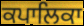
ਕਪਾਲਿਕਾ